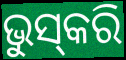
ଭୁସ୍‌କରି